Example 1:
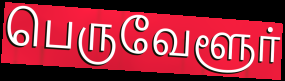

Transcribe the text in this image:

பெருவேளூர்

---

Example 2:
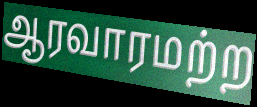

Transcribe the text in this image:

ஆரவாரமற்ற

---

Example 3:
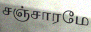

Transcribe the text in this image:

சஞ்சாரமே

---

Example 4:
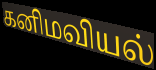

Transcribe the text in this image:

கனிமவியல்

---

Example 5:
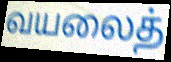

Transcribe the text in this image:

வயலைத்